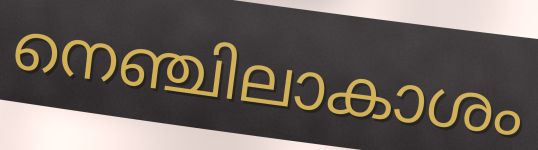
നെഞ്ചിലാകാശം